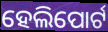
ହେଲିପୋର୍ଟ